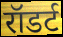
रॉडर्ट